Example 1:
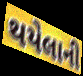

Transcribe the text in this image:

થયેલાની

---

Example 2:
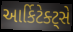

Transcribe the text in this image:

આર્કિટેક્ટ્સે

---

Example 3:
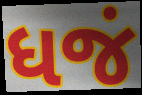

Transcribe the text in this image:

ધજં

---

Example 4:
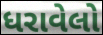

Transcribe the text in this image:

ધરાવેલો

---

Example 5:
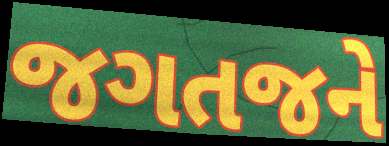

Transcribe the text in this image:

જગતજને